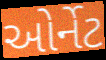
ઓર્નેટ